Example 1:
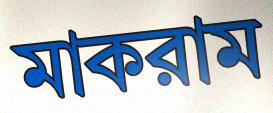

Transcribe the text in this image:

মাকরাম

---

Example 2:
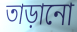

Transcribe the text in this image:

তাড়ানো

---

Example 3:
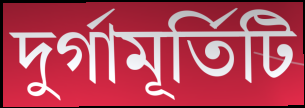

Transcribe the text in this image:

দুর্গামূর্তিটি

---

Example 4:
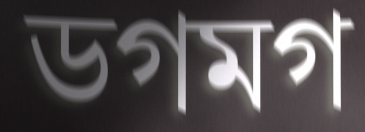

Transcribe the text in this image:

ডগমগ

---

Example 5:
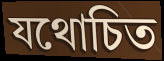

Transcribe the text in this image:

যথোচিত